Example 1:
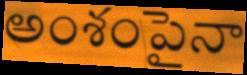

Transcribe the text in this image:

అంశంపైనా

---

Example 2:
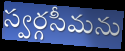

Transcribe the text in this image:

స్వర్గసీమను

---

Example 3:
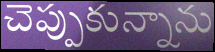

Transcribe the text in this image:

చెప్పుకున్నాను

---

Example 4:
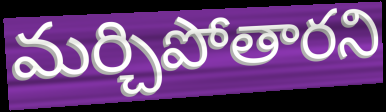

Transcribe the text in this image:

మర్చిపోతారని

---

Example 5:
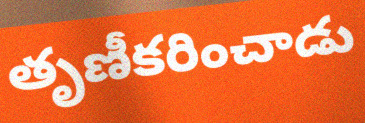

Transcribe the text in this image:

తృణీకరించాడు